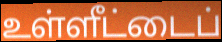
உள்ளீட்டைப்